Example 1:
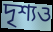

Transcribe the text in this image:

দৃশ্যও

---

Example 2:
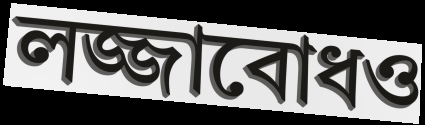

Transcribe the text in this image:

লজ্জাবোধও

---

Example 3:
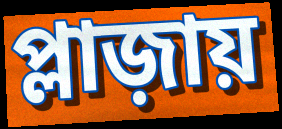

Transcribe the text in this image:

প্লাজ়ায়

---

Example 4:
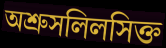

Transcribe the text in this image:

অশ্রুসলিলসিক্ত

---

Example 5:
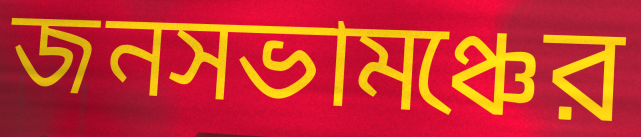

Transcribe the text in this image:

জনসভামঞ্চের